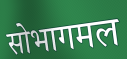
सोभागमल